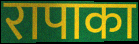
रापाका